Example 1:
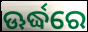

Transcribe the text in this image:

ଊର୍ଦ୍ଧରେ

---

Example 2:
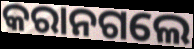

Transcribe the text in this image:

କରାନଗଲେ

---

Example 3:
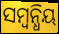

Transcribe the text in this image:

ସମ୍ଵନ୍ଧିୟ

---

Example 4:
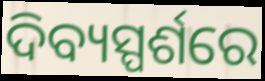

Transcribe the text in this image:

ଦିବ୍ୟସ୍ପର୍ଶରେ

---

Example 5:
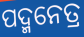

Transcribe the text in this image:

ପଦ୍ମନେତ୍ର